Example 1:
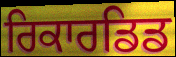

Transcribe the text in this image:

ਰਿਕਾਰਡਿਡ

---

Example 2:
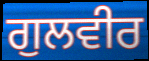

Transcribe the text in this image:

ਗੁਲਵੀਰ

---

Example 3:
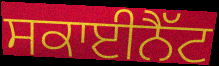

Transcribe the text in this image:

ਸਕਾਈਨੈੱਟ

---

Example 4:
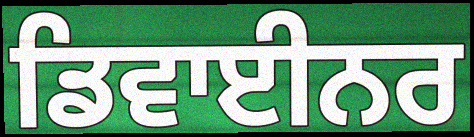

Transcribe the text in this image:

ਡਿਵਾਈਨਰ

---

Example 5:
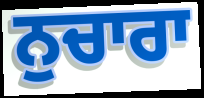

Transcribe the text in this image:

ਨੁਚਾਰਾ